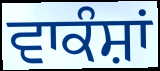
ਵਾਕੰਸ਼ਾਂ